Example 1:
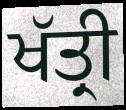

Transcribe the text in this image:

ਖੱਤ੍ਰੀ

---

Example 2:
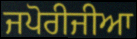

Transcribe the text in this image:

ਜਪੋਰੀਜੀਆ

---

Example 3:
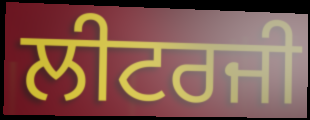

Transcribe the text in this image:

ਲੀਟਰਜੀ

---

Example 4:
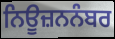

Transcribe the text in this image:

ਨਿਊਜ਼ਨਨੰਬਰ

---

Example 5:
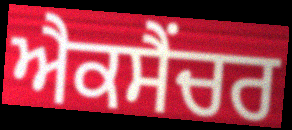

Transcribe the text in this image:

ਐਕਸੈਂਚਰ